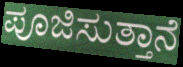
ಪೂಜಿಸುತ್ತಾನೆ